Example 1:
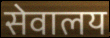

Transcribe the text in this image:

सेवालय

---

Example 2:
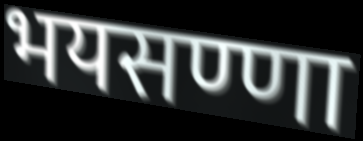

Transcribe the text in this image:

भयसण्णा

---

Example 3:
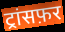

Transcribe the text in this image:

ट्रांसफ़र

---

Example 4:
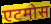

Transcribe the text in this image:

एटमोस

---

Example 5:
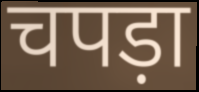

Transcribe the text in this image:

चपड़ा